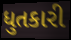
ધુતકારી